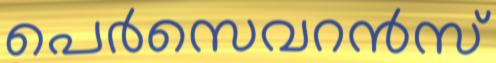
പെർസെവറൻസ്